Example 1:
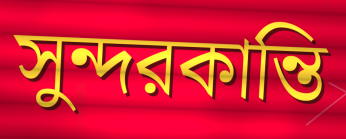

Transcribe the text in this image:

সুন্দরকান্তি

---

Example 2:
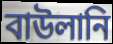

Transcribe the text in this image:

বাউলানি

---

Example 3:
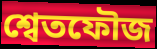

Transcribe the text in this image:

শ্বেতফৌজ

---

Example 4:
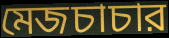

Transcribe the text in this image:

মেজচাচার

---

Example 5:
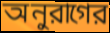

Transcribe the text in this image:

অনুরাগের